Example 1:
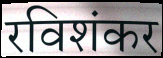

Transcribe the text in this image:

रविशंकर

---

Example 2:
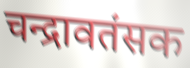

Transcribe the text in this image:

चन्द्रावतंसक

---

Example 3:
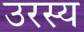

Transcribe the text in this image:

उरस्य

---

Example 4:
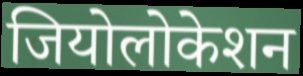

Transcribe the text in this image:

जियोलोकेशन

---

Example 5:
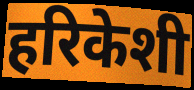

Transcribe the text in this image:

हरिकेशी